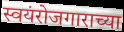
स्वयंरोजगाराच्या